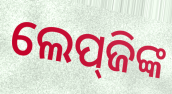
ଲେପ୍‌ଜିଙ୍କ